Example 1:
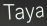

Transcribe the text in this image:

Taya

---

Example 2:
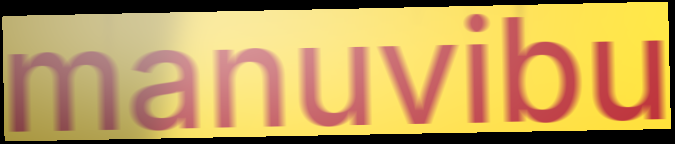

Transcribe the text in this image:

manuvibu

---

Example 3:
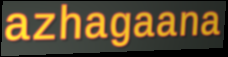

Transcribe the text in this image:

azhagaana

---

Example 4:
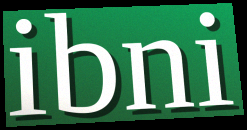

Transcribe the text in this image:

ibni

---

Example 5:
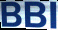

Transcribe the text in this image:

BBI